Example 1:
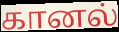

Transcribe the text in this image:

கானல்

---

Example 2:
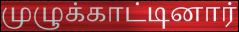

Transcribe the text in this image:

முழுக்காட்டினார்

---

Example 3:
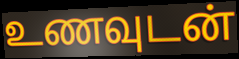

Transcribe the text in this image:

உணவுடன்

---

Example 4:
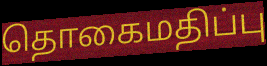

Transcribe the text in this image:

தொகைமதிப்பு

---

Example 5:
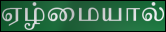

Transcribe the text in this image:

ஏழ்மையால்